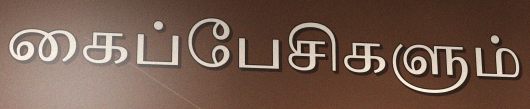
கைப்பேசிகளும்